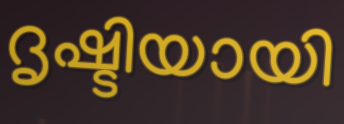
ദൃഷ്ടിയായി